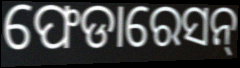
ଫେଡାରେସନ୍